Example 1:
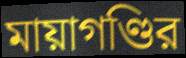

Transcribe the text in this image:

মায়াগণ্ডির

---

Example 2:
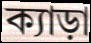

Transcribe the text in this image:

ক্যাড়া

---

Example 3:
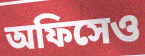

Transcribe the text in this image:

অফিসেও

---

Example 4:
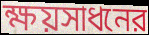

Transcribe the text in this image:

ক্ষয়সাধনের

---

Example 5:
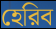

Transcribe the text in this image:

হেরিব